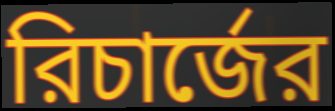
রিচার্জের